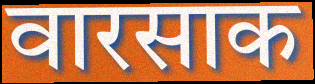
वारसाक